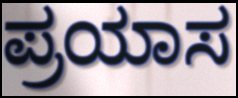
ಪ್ರಯಾಸ